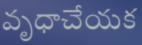
వృధాచేయక